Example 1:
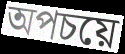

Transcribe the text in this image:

অপচয়ে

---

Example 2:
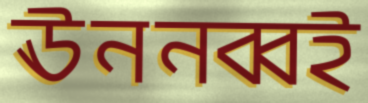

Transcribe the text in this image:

ঊননব্বই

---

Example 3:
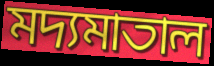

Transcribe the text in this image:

মদ্যমাতাল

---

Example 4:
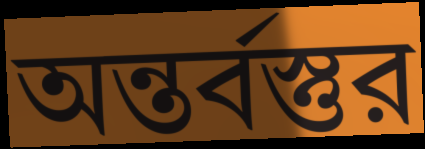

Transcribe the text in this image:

অন্তর্বস্তুর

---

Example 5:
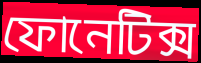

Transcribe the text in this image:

ফোনেটিক্স